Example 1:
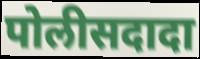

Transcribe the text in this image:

पोलीसदादा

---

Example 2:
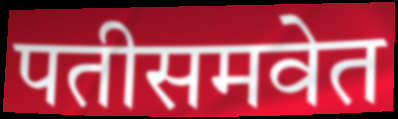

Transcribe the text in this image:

पतीसमवेत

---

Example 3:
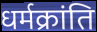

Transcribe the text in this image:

धर्मक्रांति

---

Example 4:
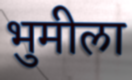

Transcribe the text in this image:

भुमीला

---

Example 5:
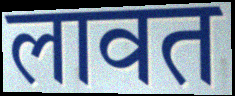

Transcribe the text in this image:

लावत